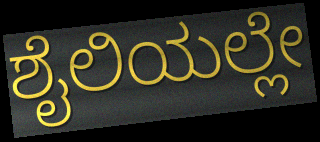
ಶೈಲಿಯಲ್ಲೇ